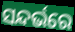
ସନ୍ଦର୍ଭରେ